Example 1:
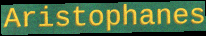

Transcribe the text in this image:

Aristophanes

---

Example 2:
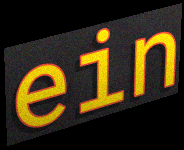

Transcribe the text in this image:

ein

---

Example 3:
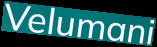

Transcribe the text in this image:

Velumani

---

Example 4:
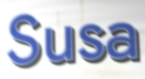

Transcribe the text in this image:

Susa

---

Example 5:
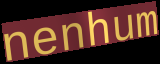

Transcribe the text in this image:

nenhum